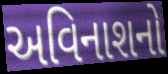
અવિનાશનો